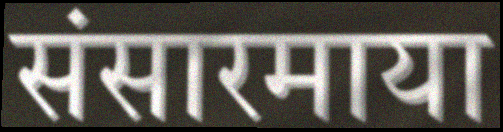
संसारमाया